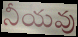
నీయవు